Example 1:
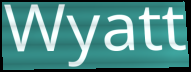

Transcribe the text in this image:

Wyatt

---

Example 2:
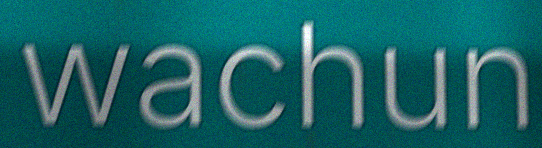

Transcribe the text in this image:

wachun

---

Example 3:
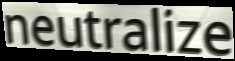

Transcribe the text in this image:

neutralize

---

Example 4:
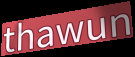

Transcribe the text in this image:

thawun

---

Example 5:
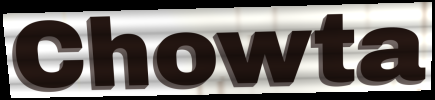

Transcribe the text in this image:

Chowta